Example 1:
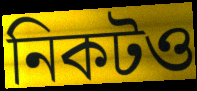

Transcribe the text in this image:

নিকটও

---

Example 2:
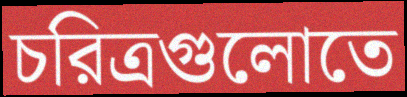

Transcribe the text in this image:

চরিত্রগুলোতে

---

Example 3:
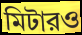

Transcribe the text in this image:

মিটারও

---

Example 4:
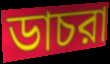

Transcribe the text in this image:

ডাচরা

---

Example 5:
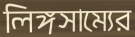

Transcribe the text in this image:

লিঙ্গসাম্যের